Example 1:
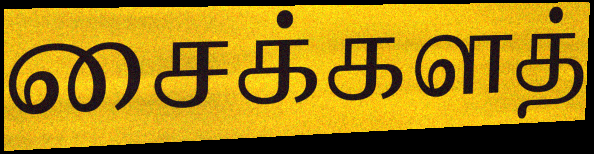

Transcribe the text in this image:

சைக்களத்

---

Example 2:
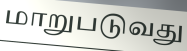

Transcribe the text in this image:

மாறுபடுவது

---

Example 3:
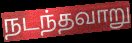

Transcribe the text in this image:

நடந்தவாறு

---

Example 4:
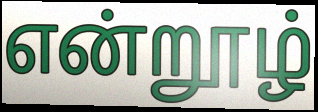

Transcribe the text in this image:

என்றூழ்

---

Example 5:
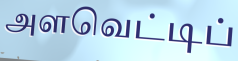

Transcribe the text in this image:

அளவெட்டிப்